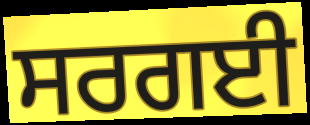
ਸਰਗਈ